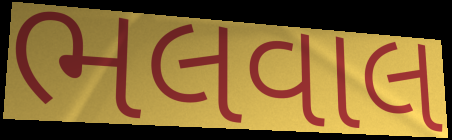
ભલવાલ